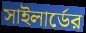
সাইলার্ডের